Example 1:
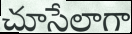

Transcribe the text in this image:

చూసేలాగా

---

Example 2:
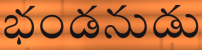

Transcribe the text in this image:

భండనుడు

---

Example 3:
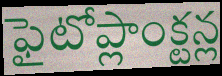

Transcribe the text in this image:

ఫైటోప్లాంక్టన్ల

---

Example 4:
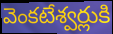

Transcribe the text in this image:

వెంకటేశ్వర్లుకి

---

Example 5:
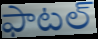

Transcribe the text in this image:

ఫాటల్